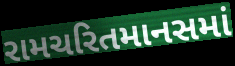
રામચરિતમાનસમાં